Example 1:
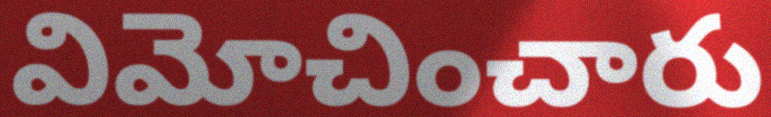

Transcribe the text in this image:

విమోచించారు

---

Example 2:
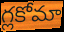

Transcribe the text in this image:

గ్లకోమా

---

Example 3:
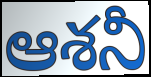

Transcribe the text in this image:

ఆశనీ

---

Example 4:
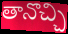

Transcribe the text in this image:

తానొచ్చి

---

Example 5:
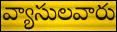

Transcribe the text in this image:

వ్యాసులవారు